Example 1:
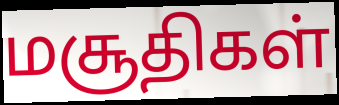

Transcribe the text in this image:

மசூதிகள்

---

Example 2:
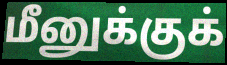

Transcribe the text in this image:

மீனுக்குக்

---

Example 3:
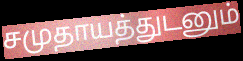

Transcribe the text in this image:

சமுதாயத்துடனும்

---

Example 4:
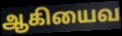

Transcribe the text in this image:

ஆகியைவ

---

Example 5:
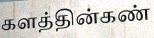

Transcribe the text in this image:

களத்தின்கண்